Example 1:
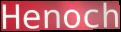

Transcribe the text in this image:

Henoch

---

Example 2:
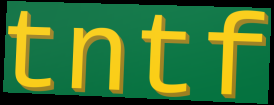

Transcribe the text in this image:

tntf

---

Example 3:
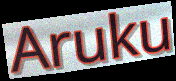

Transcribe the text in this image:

Aruku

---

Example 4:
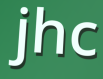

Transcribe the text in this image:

jhc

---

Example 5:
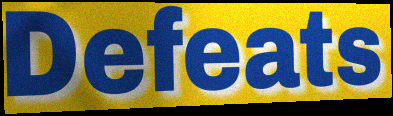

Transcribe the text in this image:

Defeats